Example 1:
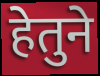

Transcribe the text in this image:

हेतुने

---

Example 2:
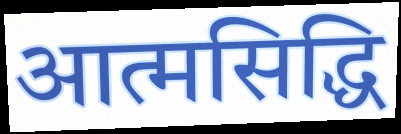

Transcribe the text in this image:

आत्मसिद्धि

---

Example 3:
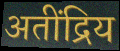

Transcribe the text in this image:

अतींद्रिय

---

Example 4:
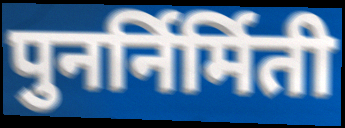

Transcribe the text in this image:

पुनर्निर्मिती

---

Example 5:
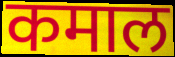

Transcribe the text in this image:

कमाल